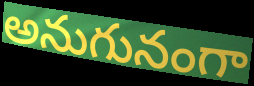
అనుగునంగా